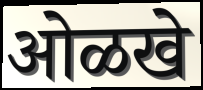
ओळखे